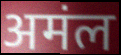
अमंल